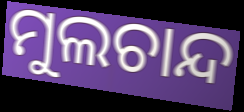
ମୁଲଚାନ୍ଦ